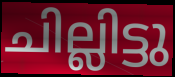
ചില്ലിട്ടു